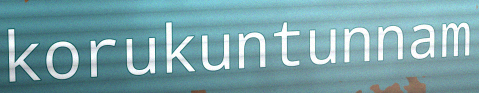
korukuntunnam